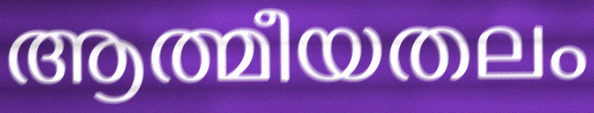
ആത്മീയതലം